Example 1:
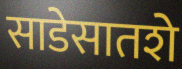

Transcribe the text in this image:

साडेसातशे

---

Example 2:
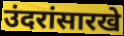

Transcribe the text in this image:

उंदरांसारखे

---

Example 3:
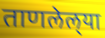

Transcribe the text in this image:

ताणलेल्या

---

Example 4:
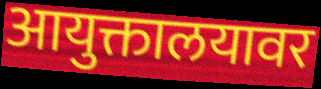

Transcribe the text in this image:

आयुक्तालयावर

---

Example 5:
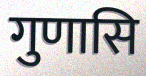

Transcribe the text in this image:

गुणासि